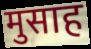
मुसाह